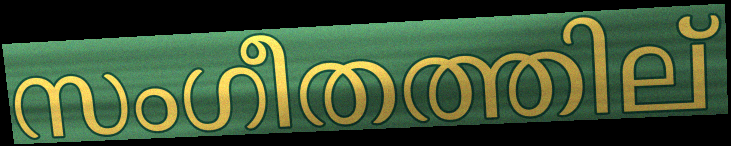
സംഗീതത്തില്